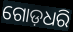
ଗୋଡ଼ଧରି